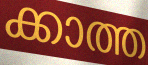
ക്കാത്ത